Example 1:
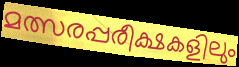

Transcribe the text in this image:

മത്സരപ്പരീക്ഷകളിലും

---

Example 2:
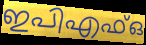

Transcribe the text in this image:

ഇപിഎഫ്ഒ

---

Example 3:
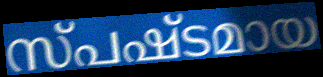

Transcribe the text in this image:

സ്പഷ്ടമായ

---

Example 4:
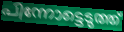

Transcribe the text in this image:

പിന്നോട്ടെടുത്ത്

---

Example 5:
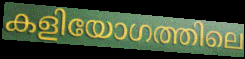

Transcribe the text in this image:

കളിയോഗത്തിലെ